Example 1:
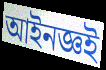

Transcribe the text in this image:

আইনজ্ঞই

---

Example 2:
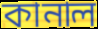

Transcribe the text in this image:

কানাল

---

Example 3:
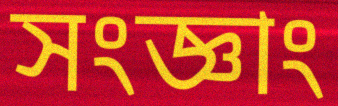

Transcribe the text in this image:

সংজ্ঞাং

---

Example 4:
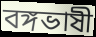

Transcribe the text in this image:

বঙ্গভাষী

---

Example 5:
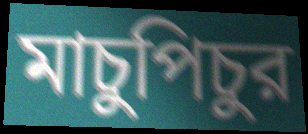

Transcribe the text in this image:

মাচুপিচুর